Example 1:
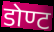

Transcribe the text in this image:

डोण्ट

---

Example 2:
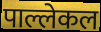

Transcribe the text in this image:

पाल्लेकल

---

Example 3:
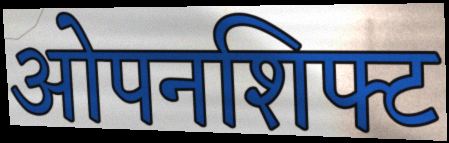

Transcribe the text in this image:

ओपनशिफ्ट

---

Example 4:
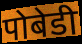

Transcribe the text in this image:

पोबेडी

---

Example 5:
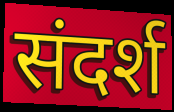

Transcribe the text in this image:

संदर्श